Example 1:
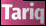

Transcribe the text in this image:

Tariq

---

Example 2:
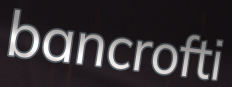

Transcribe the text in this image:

bancrofti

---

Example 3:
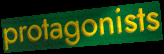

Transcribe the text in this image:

protagonists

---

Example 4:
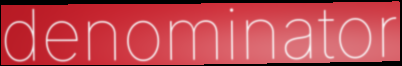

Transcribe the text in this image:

denominator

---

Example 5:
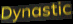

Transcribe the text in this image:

Dynastic